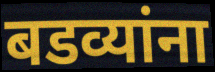
बडव्यांना